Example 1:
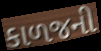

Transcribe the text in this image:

કાળજની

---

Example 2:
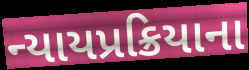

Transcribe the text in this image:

ન્યાયપ્રક્રિયાના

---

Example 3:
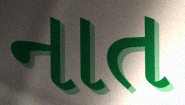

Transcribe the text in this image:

નાત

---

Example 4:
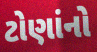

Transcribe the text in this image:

ટોણાંનો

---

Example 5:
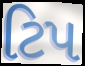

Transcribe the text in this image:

ટિપ